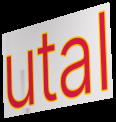
utal